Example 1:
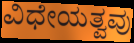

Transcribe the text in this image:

ವಿಧೇಯತ್ವವು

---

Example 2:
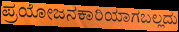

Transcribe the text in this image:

ಪ್ರಯೋಜನಕಾರಿಯಾಗಬಲ್ಲದು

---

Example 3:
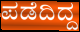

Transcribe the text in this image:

ಪಡೆದಿದ್ದ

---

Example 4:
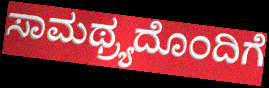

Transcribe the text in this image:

ಸಾಮಥ್ರ್ಯದೊಂದಿಗೆ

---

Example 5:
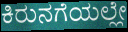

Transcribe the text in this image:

ಕಿರುನಗೆಯಲ್ಲೇ